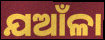
ଯଆଁଳା